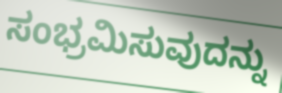
ಸಂಭ್ರಮಿಸುವುದನ್ನು